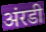
अंरडी